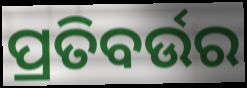
ପ୍ରତିବର୍ଉର